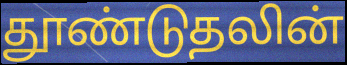
தூண்டுதலின்